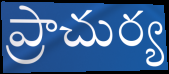
ప్రాచుర్య